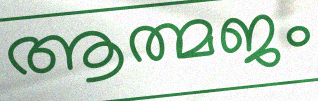
ആത്മജം